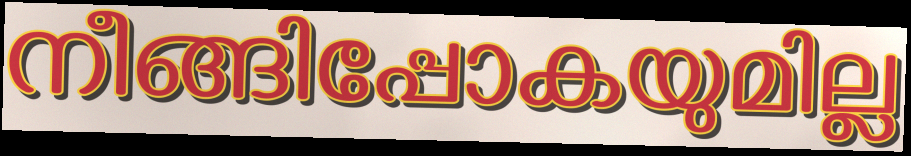
നീങ്ങിപ്പോകയുമില്ല